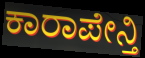
ಕಾರಾಪೇನ್ತಿ